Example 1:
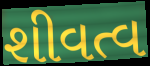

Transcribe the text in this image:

શીવત્વ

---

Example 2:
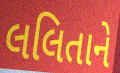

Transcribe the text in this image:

લલિતાને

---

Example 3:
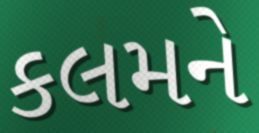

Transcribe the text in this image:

કલમને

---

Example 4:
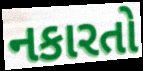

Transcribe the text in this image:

નકારતો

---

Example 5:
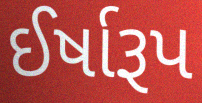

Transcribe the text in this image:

ઈર્ષારૂપ